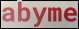
abyme